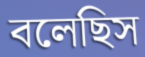
বলেছিস